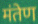
मंतेण